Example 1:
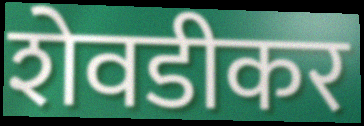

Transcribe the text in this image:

शेवडीकर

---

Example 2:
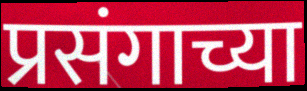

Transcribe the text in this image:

प्रसंगाच्या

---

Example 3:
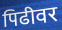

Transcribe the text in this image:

पिढीवर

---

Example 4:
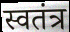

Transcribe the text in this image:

स्वतंत्र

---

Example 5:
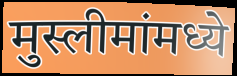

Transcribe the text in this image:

मुस्लीमांमध्ये